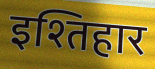
इश्तिहार